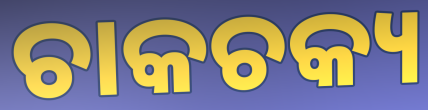
ଚାକଚକ୍ୟ